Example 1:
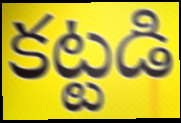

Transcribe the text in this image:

కట్టడి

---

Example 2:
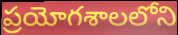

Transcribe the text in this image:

ప్రయోగశాలలోని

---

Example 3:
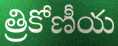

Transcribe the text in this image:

త్రికోణీయ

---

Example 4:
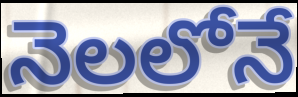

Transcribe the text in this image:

నెలలోనే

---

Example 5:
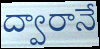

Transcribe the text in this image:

ద్వారానే